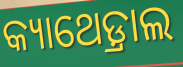
କ୍ୟାଥେଡ଼୍ରାଲ